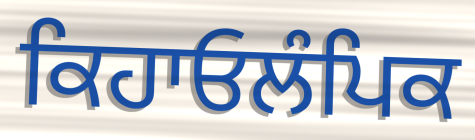
ਕਿਹਾਓਲੰਪਿਕ